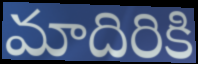
మాదిరికి